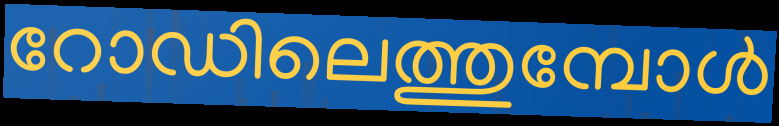
റോഡിലെത്തുമ്പോൾ